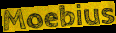
Moebius